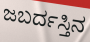
ಜಬರ್ದಸ್ತಿನ